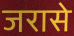
जरासे